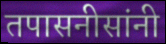
तपासनीसांनी